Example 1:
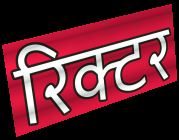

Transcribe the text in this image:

रिक्टर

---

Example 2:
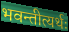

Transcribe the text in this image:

भवन्तीत्यर्थः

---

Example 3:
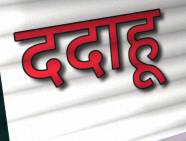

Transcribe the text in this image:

ददाहू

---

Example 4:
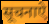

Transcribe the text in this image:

सूचनाऐ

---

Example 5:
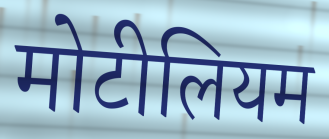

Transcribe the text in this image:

मोटीलियम